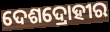
ଦେଶଦ୍ରୋହୀର